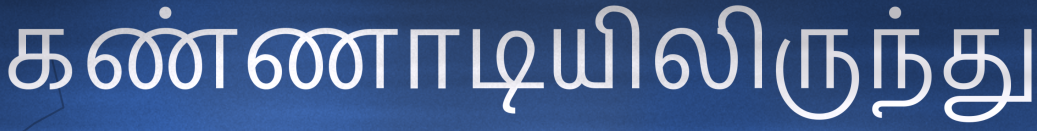
கண்ணாடியிலிருந்து